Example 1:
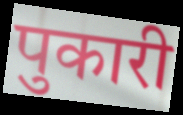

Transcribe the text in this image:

पुकारी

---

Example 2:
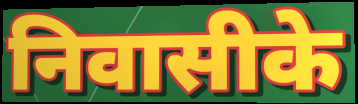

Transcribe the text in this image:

निवासीके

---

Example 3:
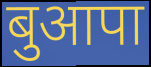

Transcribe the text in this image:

बुआपा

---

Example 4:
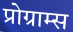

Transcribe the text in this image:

प्रोग्राम्स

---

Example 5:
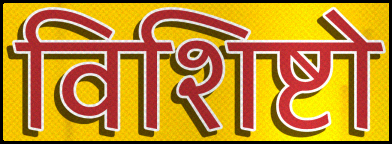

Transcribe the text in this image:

विशिष्टो